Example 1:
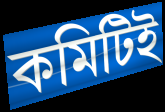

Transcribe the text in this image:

কমিটিই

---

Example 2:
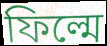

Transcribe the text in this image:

ফিল্মে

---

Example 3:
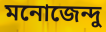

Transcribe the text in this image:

মনোজেন্দু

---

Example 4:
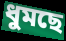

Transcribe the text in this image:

ধুমছে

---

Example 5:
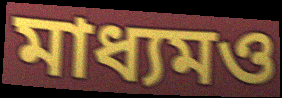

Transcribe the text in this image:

মাধ্যমও